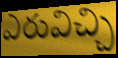
ఎరువిచ్చి